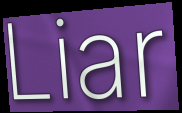
Liar